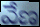
వేణ